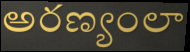
అరణ్యంలా